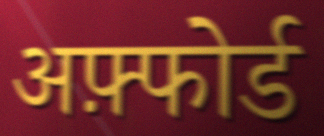
अफ़्फोर्ड